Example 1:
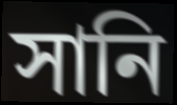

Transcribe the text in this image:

সানি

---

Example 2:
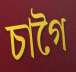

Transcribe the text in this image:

চাগৈ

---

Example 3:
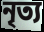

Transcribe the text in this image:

নৃত্য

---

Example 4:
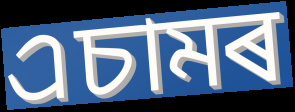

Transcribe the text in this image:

এচামৰ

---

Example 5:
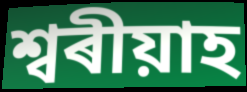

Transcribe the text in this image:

শ্বৰীয়াহ